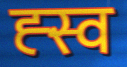
ह्स्व